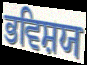
ਭਵਿਸ਼ਯ